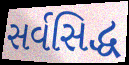
સર્વસિદ્ધ